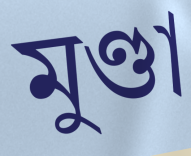
মুণ্ডা